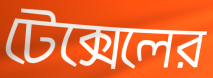
টেক্সেলের